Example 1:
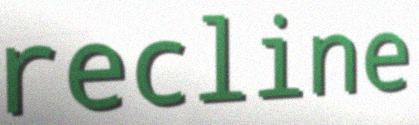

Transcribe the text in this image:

recline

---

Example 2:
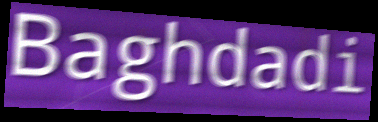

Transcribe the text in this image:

Baghdadi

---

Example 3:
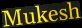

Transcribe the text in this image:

Mukesh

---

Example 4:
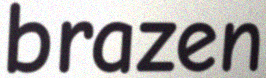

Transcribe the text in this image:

brazen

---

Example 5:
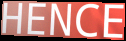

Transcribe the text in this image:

HENCE